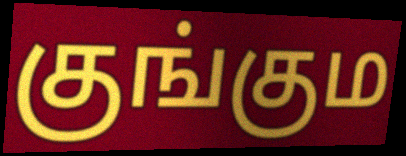
குங்கும